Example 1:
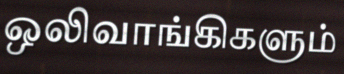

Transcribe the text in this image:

ஒலிவாங்கிகளும்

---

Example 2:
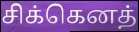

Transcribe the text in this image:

சிக்கெனத்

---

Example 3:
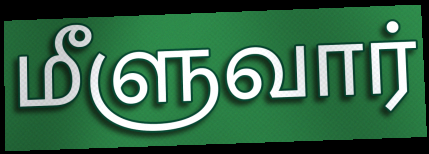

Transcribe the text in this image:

மீளுவார்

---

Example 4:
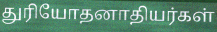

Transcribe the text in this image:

துரியோதனாதியர்கள்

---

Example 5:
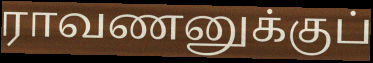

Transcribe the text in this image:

ராவணனுக்குப்